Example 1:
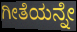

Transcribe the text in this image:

ಗೀತೆಯನ್ನೇ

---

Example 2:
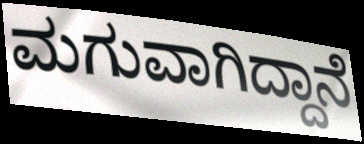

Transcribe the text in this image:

ಮಗುವಾಗಿದ್ದಾನೆ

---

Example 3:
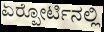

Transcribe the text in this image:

ಏರ್‍ಪೋರ್ಟಿನಲ್ಲಿ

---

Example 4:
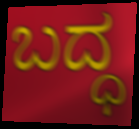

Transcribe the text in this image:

ಬದ್ಧ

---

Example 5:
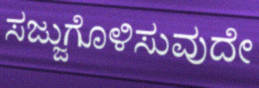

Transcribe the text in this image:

ಸಜ್ಜುಗೊಳಿಸುವುದೇ